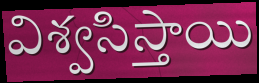
విశ్వసిస్తాయి